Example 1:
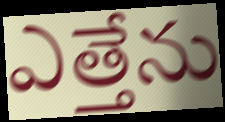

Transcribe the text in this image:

ఎత్తేను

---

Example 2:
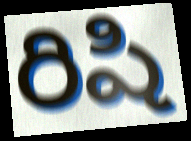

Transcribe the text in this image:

రిషి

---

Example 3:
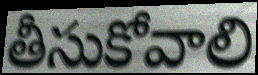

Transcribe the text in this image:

తీసుకోవాలి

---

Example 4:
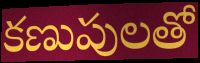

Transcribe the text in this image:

కణుపులతో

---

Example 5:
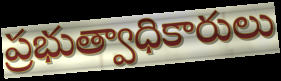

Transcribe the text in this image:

ప్రభుత్వాధికారులు